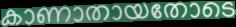
കാണാതായതോടെ